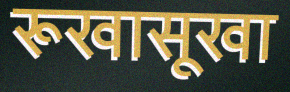
रूखासूखा